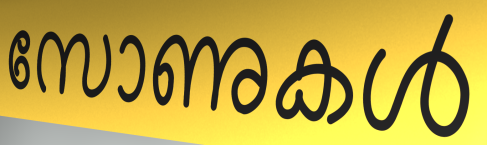
സോണുകൾ